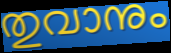
തുവാനും